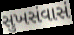
સુખસંવાસં